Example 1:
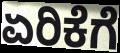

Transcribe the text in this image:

ಏರಿಕೆಗೆ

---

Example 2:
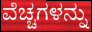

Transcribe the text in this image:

ವೆಚ್ಚಗಳನ್ನು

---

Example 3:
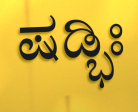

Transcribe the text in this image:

ಷಡ್ಭಿಃ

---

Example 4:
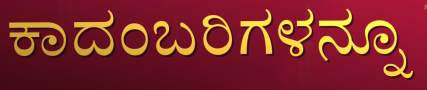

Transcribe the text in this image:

ಕಾದಂಬರಿಗಳನ್ನೂ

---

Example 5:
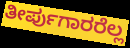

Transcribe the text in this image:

ತೀರ್ಪುಗಾರರೆಲ್ಲ